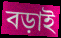
বড়াই